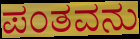
ಪಂತವನು